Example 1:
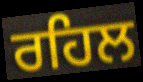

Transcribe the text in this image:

ਰਹਿਲ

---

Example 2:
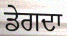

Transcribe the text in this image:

ਡੇਗਦਾ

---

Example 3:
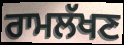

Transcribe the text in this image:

ਰਾਮਲੱਖਣ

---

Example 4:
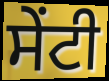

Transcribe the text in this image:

ਸੇਂਟੀ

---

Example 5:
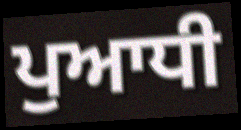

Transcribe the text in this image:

ਪੁਆਧੀ